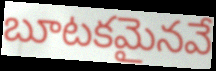
బూటకమైనవే